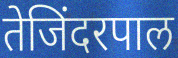
तेजिंदरपाल